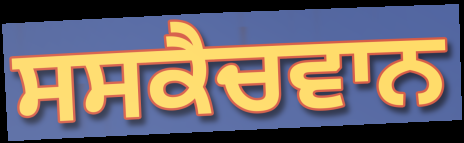
ਸਸਕੈਚਵਾਨ